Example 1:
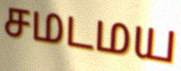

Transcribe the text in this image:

சமடமய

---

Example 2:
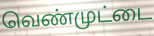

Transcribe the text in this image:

வெண்முட்டை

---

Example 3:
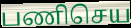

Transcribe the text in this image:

பணிசெய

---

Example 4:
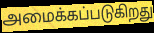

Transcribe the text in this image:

அமைக்கப்படுகிறது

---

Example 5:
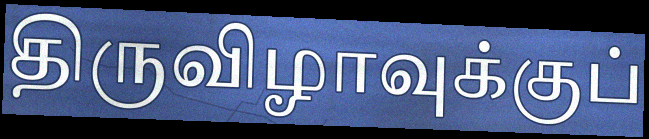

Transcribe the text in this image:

திருவிழாவுக்குப்